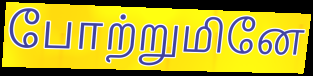
போற்றுமினே